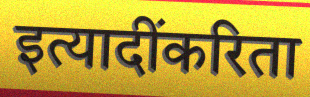
इत्यादींकरिता